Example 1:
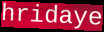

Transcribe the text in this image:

hridaye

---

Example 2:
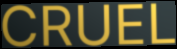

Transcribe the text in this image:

CRUEL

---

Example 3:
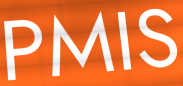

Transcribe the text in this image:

PMIS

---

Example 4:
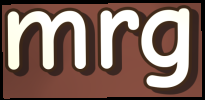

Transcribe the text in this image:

mrg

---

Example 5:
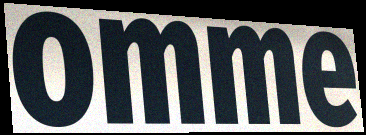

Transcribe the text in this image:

omme